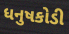
ધનુષકોડી